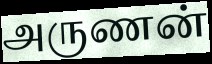
அருணன்